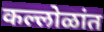
कल्लोळांत